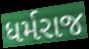
ધર્મરાજ